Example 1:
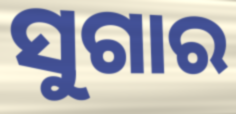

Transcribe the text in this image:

ସୁଗାର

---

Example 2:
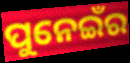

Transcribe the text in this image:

ପୁନେଇଁର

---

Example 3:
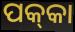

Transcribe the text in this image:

ପକ୍‌କା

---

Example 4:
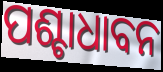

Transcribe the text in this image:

ପଶ୍ଚାଧାବନ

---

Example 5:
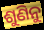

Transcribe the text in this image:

ଶୁଣିନୁ